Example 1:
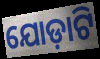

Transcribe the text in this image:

ଯୋଡ଼ାଟି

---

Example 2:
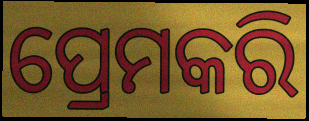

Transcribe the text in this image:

ପ୍ରେମକରି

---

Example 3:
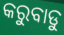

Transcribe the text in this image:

କରୁବାଡୁ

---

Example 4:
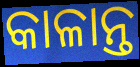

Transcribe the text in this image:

କାଳାନ୍ତ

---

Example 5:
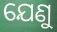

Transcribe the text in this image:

ଯେଣୁ